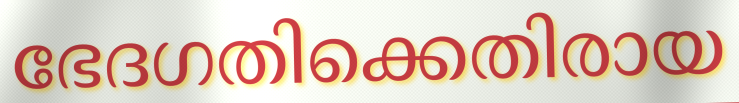
ഭേദഗതിക്കെതിരായ